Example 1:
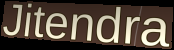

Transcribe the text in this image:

Jitendra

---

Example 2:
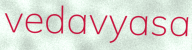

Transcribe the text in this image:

vedavyasa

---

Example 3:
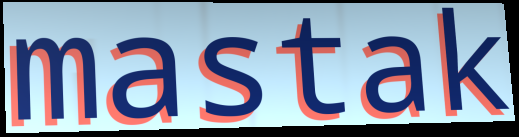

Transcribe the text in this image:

mastak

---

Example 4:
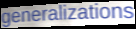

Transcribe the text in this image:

generalizations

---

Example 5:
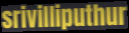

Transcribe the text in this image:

srivilliputhur